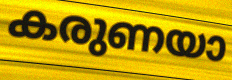
കരുണയാ